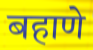
बहाणे